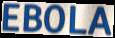
EBOLA